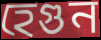
হেগুন